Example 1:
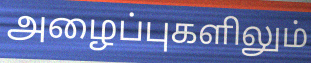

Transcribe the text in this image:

அழைப்புகளிலும்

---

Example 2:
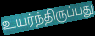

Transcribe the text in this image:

உயர்ந்திருப்பது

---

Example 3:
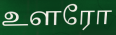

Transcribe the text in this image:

உளரோ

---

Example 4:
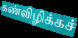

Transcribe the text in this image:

கண்விழிக்கச்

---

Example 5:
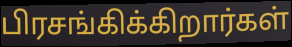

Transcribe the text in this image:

பிரசங்கிக்கிறார்கள்